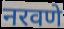
नरवणे